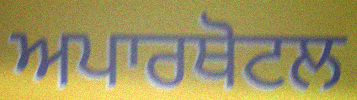
ਅਪਾਰਥੋਟਲ